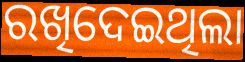
ରଖିଦେଇଥିଲା